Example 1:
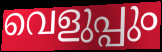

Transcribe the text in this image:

വെളുപ്പും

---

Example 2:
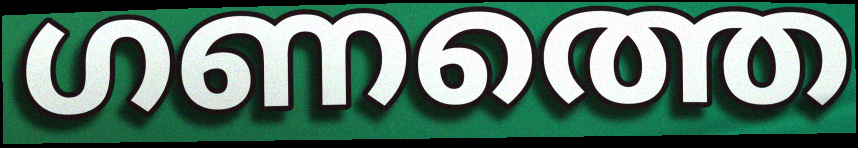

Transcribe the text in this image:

ഗണത്തെ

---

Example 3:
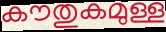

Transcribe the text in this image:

കൗതുകമുള്ള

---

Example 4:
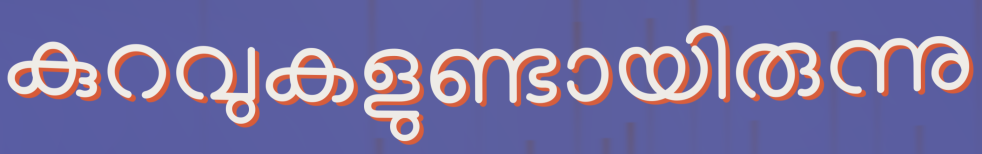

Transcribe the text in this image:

കുറവുകളുണ്ടായിരുന്നു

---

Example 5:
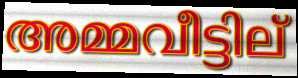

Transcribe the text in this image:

അമ്മവീട്ടില്